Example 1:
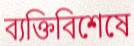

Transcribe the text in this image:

ব্যক্তিবিশেষে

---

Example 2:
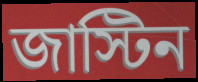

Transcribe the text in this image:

জাস্টিন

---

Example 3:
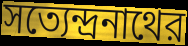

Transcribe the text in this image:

সত্যেন্দ্রনাথের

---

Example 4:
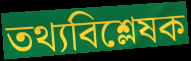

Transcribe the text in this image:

তথ্যবিশ্লেষক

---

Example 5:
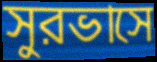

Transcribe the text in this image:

সুরভাসে